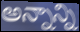
అన్నాన్ని